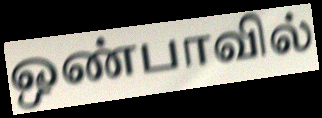
ஒண்பாவில்